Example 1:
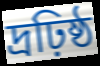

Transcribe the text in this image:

দ্রঢ়িষ্ঠ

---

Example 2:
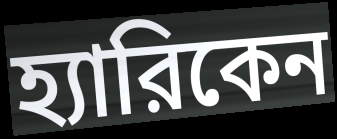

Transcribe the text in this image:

হ্যারিকেন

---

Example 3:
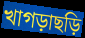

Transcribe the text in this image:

খাগড়াছড়ি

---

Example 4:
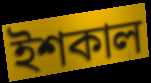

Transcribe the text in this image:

ইশকাল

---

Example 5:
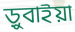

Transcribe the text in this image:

ড়ুবাইয়া